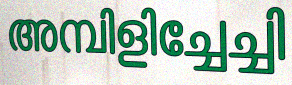
അമ്പിളിച്ചേച്ചി